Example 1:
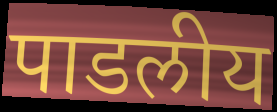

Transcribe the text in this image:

पाडलीय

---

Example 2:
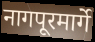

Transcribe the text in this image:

नागपूरमार्गे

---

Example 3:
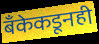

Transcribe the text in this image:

बँकेकडूनही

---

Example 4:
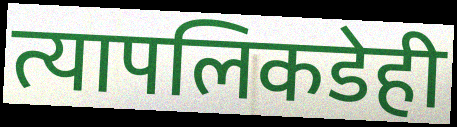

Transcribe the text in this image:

त्यापलिकडेही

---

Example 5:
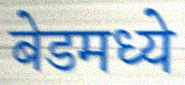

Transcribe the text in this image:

बेडमध्ये